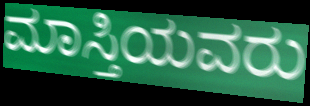
ಮಾಸ್ತಿಯವರು